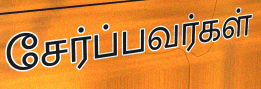
சேர்ப்பவர்கள்